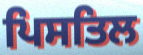
ਪਿਸਤਿਲ